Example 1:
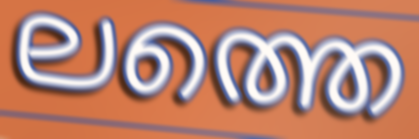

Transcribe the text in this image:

ലത്തെ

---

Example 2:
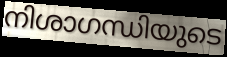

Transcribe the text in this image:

നിശാഗന്ധിയുടെ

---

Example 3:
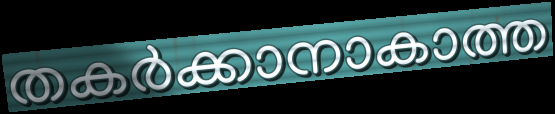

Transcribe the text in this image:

തകർക്കാനാകാത്ത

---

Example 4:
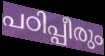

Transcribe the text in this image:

പഠിപ്പീരും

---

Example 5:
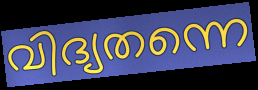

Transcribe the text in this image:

വിദ്യതന്നെ